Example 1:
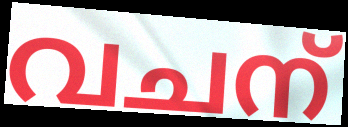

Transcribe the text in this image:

വചന്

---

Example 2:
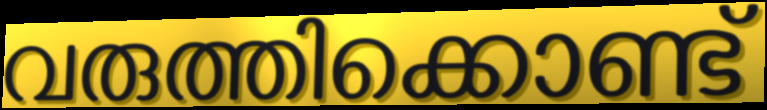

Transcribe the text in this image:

വരുത്തിക്കൊണ്ട്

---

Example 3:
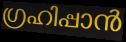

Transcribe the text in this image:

ഗ്രഹിപ്പാൻ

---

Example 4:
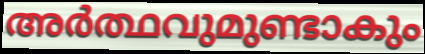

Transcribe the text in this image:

അർത്ഥവുമുണ്ടാകും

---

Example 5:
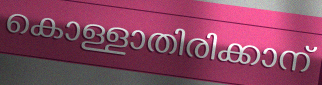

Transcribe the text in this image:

കൊള്ളാതിരിക്കാന്